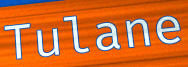
Tulane